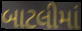
બાટલીમાં